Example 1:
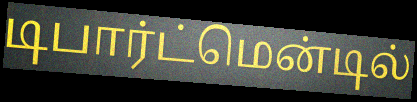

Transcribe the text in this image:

டிபார்ட்மென்டில்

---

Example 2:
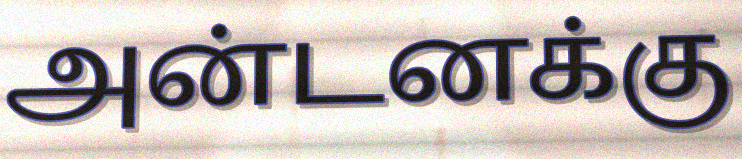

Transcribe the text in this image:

அன்டனக்கு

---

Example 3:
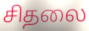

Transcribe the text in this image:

சிதலை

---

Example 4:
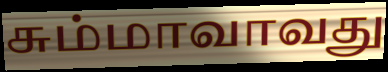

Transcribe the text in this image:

சும்மாவாவது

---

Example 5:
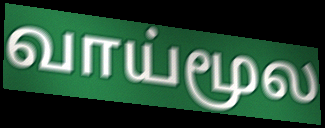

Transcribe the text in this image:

வாய்மூல